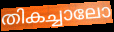
തികച്ചാലോ